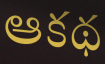
ఆకథ